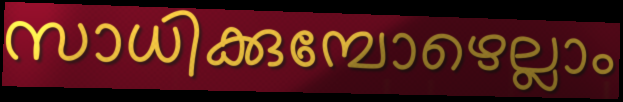
സാധിക്കുമ്പോഴെല്ലാം